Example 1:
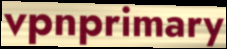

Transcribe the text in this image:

vpnprimary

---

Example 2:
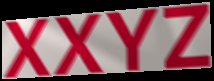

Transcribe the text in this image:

XXYZ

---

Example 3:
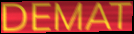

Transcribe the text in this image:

DEMAT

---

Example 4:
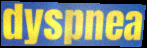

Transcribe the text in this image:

dyspnea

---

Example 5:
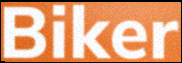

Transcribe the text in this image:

Biker